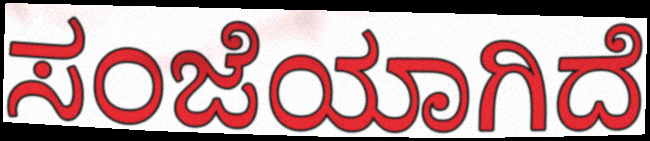
ಸಂಜೆಯಾಗಿದೆ